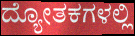
ದ್ಯೋತಕಗಳಲ್ಲಿ